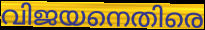
വിജയനെതിരെ